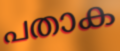
പതാക